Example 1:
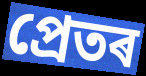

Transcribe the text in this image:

প্ৰেতৰ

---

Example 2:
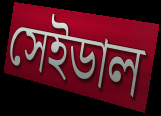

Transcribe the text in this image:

সেইডাল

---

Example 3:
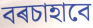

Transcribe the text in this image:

বৰচাহাবে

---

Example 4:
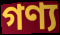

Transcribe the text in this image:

গণ্য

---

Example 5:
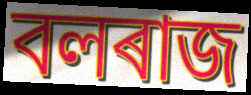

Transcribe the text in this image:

বলৰাজ